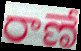
రాణే